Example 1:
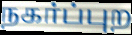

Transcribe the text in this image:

நகர்ப்புற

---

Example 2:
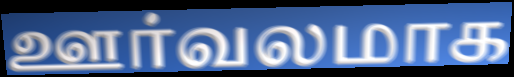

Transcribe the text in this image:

ஊர்வலமாக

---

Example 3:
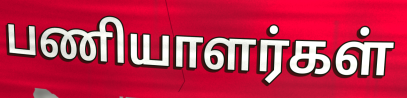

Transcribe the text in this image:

பணியாளர்கள்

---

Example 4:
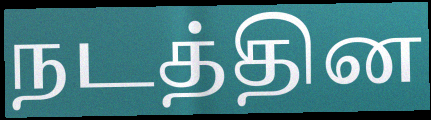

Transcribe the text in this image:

நடத்தின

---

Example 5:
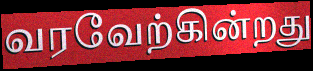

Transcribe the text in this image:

வரவேற்கின்றது